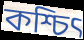
কশ্চিৎ